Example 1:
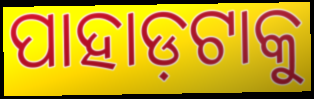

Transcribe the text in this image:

ପାହାଡ଼ଟାକୁ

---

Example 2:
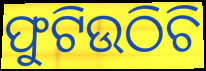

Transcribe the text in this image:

ଫୁଟିଉଠିଚି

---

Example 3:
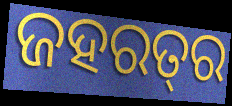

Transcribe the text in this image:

ଜହରତ୍‌ର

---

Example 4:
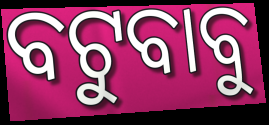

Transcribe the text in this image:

ବଟୁବାବୁ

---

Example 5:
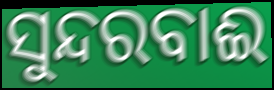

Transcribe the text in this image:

ସୁନ୍ଦରବାଈ